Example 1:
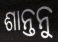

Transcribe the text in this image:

ଶାନ୍ତନୁ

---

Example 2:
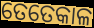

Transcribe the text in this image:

ତେତେକାଳ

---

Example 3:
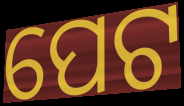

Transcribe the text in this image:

ପେଟ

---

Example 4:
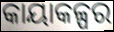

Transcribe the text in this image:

କାୟାକଳ୍ପର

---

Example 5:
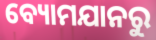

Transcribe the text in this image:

ବ୍ୟୋମଯାନରୁ